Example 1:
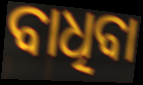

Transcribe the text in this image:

ବାଧିବା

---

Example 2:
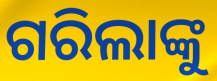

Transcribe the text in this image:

ଗରିଲାଙ୍କୁ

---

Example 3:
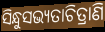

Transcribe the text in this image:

ସିନ୍ଧୁସଭ୍ୟତାଚିତ୍ରାଣି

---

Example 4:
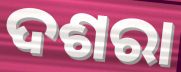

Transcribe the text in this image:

ଦଶରା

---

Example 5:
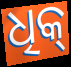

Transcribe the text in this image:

ଧିକ୍